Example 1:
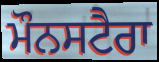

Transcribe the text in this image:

ਮੌਨਸਟੈਰਾ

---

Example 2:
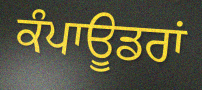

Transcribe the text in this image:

ਕੰਪਾਊਡਰਾਂ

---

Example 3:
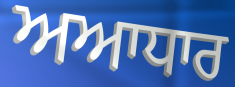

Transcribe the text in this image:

ਅਆਧਾਰ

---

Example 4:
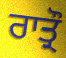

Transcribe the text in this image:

ਰਾਤ੍ਰੌ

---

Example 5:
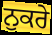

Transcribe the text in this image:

ਨੁਕਰੇ